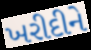
ખરીદીને